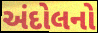
અંદોલનો